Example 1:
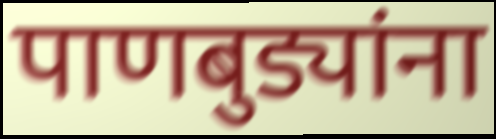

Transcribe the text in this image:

पाणबुड्यांना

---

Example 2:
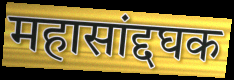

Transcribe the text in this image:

महासांद्दघक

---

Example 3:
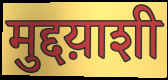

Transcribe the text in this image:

मुद्दय़ाशी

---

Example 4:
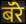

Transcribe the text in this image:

बॅरे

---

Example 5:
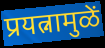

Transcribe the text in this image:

प्रयत्नामुळें